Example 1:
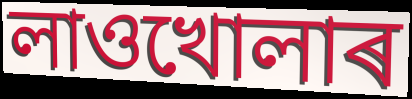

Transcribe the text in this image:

লাওখোলাৰ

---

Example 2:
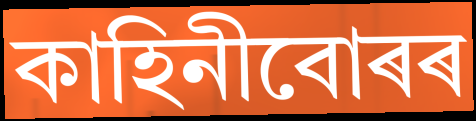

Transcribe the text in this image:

কাহিনীবোৰৰ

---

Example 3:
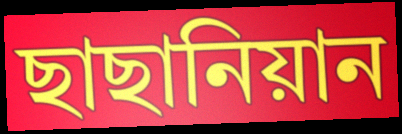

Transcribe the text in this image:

ছাছানিয়ান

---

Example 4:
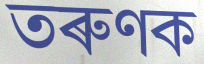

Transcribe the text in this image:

তৰুণক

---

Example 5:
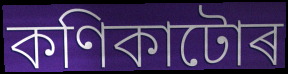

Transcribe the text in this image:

কণিকাটোৰ